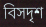
বিসদৃশ